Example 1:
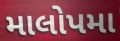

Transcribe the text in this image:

માલોપમા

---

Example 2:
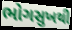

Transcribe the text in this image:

ભોગસુખથી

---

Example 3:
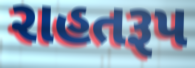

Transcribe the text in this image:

રાહતરૂપ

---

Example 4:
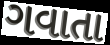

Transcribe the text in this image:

ગવાતા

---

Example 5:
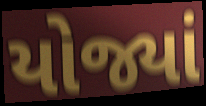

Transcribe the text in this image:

યોજ્યાં